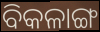
ବିକଳାଙ୍ଗ